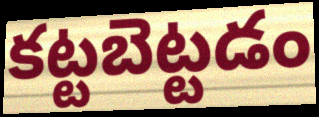
కట్టబెట్టడం